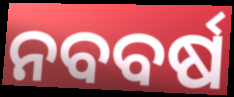
ନବବର୍ଷ